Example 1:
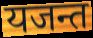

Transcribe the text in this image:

यजन्त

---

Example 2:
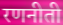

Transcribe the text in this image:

रणनीती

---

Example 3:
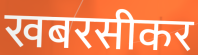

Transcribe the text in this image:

खबरसीकर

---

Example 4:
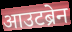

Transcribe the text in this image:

आउटब्रेन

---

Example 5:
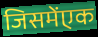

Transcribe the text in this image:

जिसमेंएक